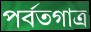
পর্বতগাত্র